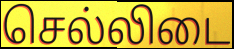
செல்லிடை